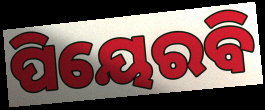
ପିୟେରବି